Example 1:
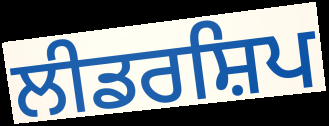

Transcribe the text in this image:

ਲੀਡਰਸ਼ਿਪ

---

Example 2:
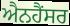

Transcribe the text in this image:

ਐਨਹੈਂਸਰ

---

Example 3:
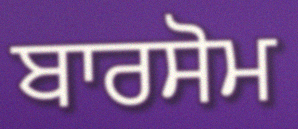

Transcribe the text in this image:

ਬਾਰਸੋਮ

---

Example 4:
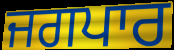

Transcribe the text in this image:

ਜਗਪਾਰ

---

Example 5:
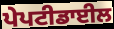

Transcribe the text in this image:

ਪੇਪਟੀਡਾਈਲ